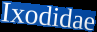
Ixodidae